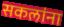
सकलांना